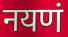
नयणं